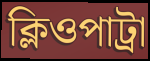
ক্লিওপাট্রা